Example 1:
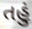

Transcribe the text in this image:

તહું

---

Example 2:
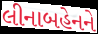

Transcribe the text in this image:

લીનાબહેનને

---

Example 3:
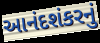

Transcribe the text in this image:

આનંદશંકરનું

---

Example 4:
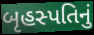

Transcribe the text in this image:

બૃહસ્પતિનું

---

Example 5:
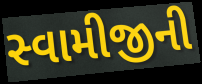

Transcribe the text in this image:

સ્વામીજીની